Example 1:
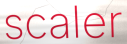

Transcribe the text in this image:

scaler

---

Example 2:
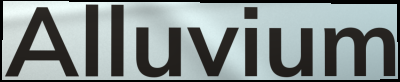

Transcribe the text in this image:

Alluvium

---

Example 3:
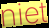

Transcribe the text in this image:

niet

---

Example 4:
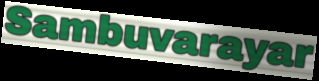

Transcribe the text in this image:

Sambuvarayar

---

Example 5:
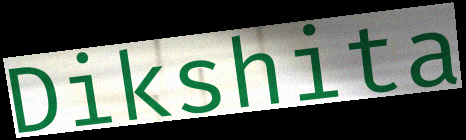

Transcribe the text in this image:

Dikshita